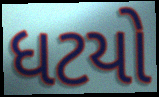
ધટયો